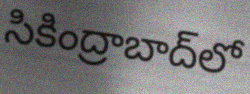
సికింద్రాబాద్‌లో